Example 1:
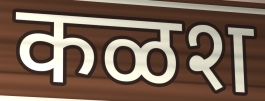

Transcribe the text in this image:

कळश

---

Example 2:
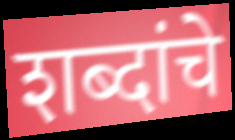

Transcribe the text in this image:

शब्दांचे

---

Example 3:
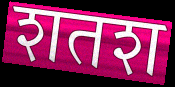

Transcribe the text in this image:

शतश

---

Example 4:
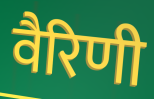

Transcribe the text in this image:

वैरिणी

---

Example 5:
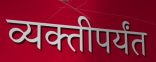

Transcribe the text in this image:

व्यक्तीपर्यंत